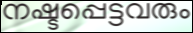
നഷ്ടപ്പെട്ടവരും